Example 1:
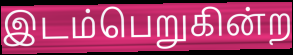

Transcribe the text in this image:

இடம்பெறுகின்ற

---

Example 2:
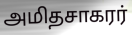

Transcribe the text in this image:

அமிதசாகரர்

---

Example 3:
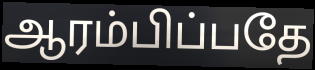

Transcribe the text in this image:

ஆரம்பிப்பதே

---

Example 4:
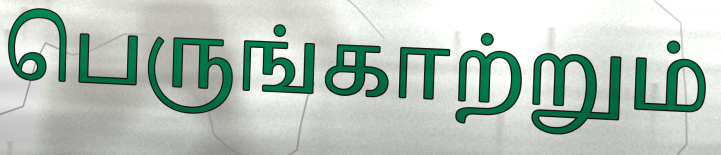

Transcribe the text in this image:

பெருங்காற்றும்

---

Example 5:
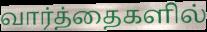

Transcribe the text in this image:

வார்த்தைகளில்